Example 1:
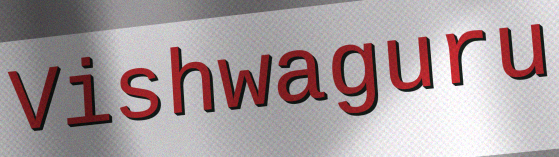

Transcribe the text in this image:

Vishwaguru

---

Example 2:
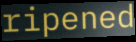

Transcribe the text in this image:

ripened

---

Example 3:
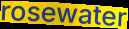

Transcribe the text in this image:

rosewater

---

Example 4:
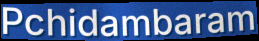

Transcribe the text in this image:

Pchidambaram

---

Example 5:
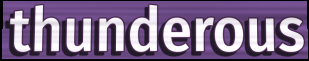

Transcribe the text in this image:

thunderous